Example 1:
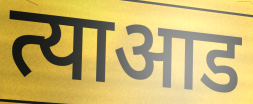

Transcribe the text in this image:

त्याआड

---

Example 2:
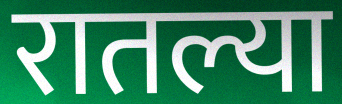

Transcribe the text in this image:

रातल्या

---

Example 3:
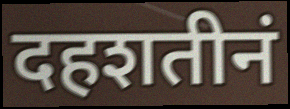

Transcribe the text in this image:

दहशतीनं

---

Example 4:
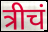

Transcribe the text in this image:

त्रीचं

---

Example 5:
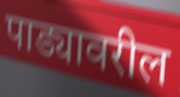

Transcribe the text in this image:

पाड्यावरील